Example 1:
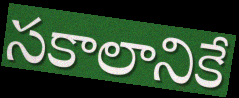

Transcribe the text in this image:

సకాలానికే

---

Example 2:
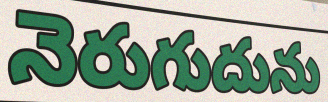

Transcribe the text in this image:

నెరుగుదును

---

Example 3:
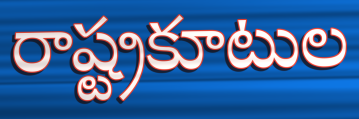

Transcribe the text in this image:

రాష్ట్రకూటుల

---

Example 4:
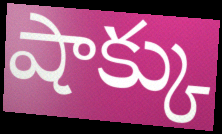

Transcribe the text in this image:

షాక్కు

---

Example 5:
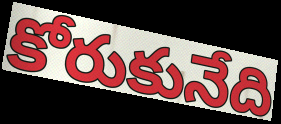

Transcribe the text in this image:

కోరుకునేది